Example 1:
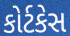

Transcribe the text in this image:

કોર્ટકેસ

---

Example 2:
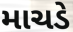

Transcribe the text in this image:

માચડે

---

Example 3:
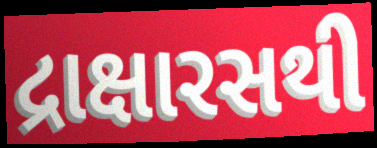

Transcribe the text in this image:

દ્રાક્ષારસથી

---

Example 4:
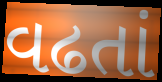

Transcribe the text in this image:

વઢતાં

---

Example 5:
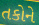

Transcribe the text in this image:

તકોને